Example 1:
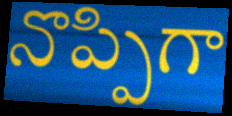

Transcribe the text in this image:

నొప్పిగా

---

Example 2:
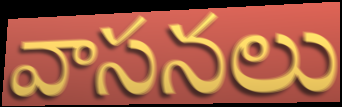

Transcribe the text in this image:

వాసనలు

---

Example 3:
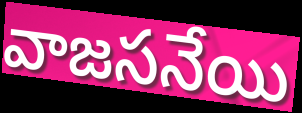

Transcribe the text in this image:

వాజసనేయి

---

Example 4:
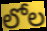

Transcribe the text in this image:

లోల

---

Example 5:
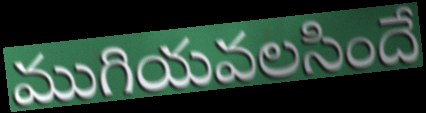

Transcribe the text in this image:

ముగియవలసిందే